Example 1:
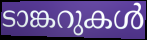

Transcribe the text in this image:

ടാങ്കറുകൾ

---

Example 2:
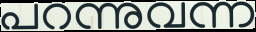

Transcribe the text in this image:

പറന്നുവന്ന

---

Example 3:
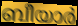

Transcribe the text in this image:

ബീയാർ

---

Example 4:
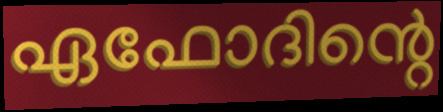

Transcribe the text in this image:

ഏഫോദിന്റെ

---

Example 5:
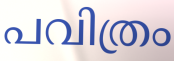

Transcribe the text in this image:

പവിത്രം